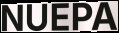
NUEPA